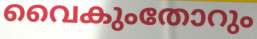
വൈകുംതോറും